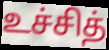
உச்சித்